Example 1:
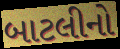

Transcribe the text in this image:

બાટલીનો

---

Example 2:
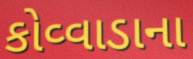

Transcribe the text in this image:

કોવ્વાડાના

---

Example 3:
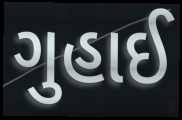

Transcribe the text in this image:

ગુહાઈ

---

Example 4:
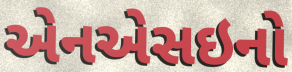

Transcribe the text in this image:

એનએસઇનો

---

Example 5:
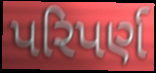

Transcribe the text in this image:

પરિપર્ણ